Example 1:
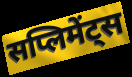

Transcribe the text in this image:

सप्लिमेंट्स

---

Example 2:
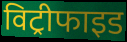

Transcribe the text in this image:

विट्रीफाइड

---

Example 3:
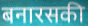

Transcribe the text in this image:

बनारसकी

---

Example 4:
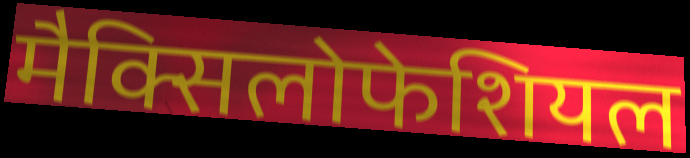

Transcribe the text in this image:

मैक्सिलोफेशियल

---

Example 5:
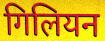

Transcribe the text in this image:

गिलियन